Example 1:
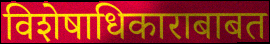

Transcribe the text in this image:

विशेषाधिकाराबाबत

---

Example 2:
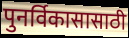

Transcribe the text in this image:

पुनर्विकासासाठी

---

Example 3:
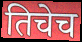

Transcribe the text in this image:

तिचेच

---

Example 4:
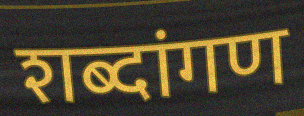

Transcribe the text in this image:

शब्दांगण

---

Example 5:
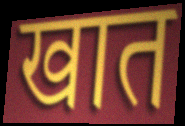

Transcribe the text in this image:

खात